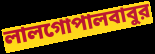
লালগোপালবাবুর